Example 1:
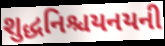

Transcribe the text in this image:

શુદ્ધનિશ્ચયનયની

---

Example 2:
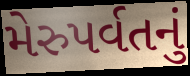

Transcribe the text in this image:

મેરુપર્વતનું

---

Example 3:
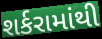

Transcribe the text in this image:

શર્કરામાંથી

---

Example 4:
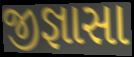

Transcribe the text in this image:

જીજ્ઞાસા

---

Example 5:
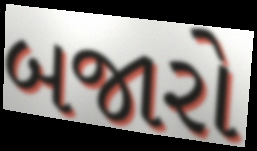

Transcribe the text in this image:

બજારો